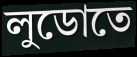
লুডোতে